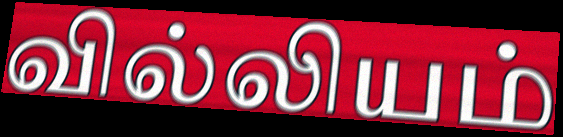
வில்லியம்